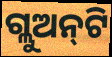
ଗ୍ଲୁଅନ୍‍ଟି